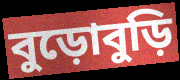
বুড়োবুড়ি